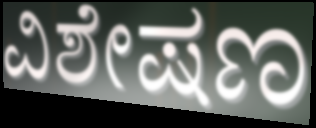
ವಿಶೇಷಣ